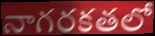
నాగరకతలో